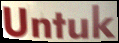
Untuk